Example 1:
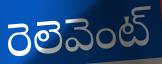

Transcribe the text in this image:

రెలెవెంట్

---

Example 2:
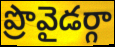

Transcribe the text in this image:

ప్రొవైడర్గా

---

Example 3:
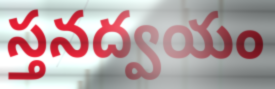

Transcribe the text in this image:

స్తనద్వయం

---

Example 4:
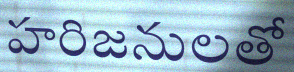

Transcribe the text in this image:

హరిజనులతో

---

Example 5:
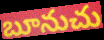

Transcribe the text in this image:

బూనుచు